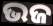
ଭଜ